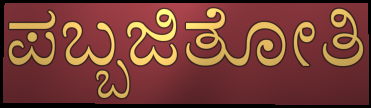
ಪಬ್ಬಜಿತೋತಿ